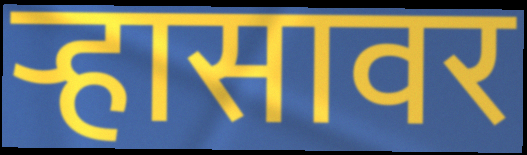
ऱ्हासावर